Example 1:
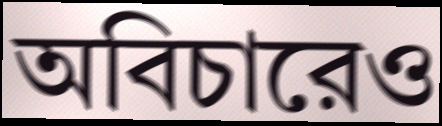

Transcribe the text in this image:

অবিচারেও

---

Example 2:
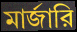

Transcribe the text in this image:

মার্জারি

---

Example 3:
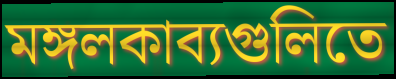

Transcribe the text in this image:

মঙ্গলকাব্যগুলিতে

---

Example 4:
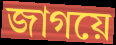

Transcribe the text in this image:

জাগয়ে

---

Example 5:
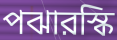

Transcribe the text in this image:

পঝারস্কি